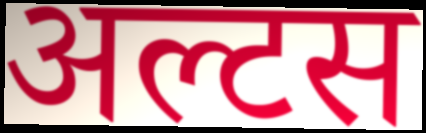
अल्टस